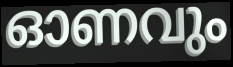
ഓണവും